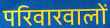
परिवारवालों